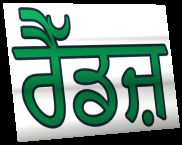
ਰੈੱਡਜ਼